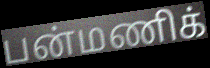
பன்மணிக்